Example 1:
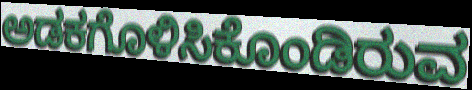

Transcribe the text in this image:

ಅಡಕಗೊಳಿಸಿಕೊಂಡಿರುವ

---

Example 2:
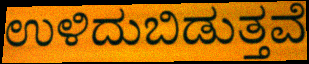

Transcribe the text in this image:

ಉಳಿದುಬಿಡುತ್ತವೆ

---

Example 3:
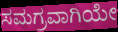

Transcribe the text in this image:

ಸಮಗ್ರವಾಗಿಯೇ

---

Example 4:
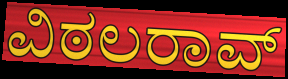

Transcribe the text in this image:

ವಿಠಲರಾವ್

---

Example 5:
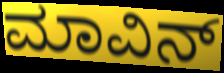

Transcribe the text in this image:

ಮಾವಿನ್